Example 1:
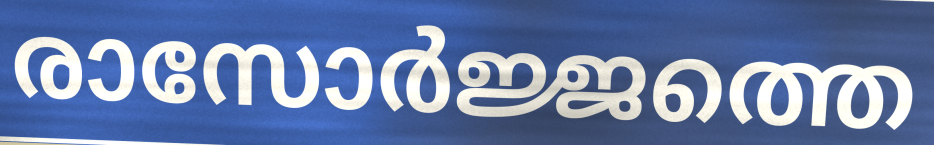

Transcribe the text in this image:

രാസോർജ്ജത്തെ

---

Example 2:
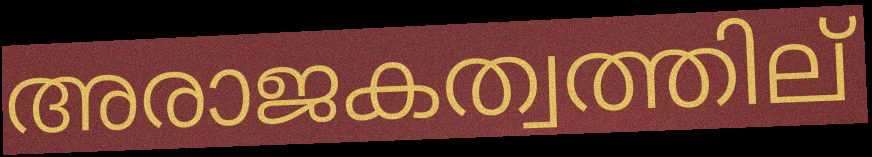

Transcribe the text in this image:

അരാജകത്വത്തില്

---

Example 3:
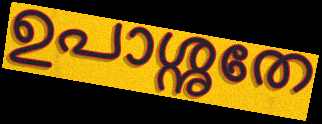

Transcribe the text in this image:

ഉപാശ്നുതേ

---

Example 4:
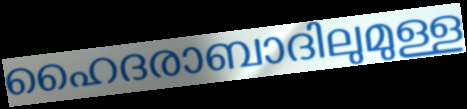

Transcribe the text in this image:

ഹൈദരാബാദിലുമുള്ള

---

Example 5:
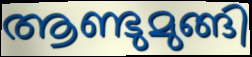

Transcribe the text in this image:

ആണ്ടുമുങ്ങി